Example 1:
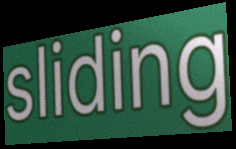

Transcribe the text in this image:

sliding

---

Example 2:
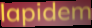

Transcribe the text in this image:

lapidem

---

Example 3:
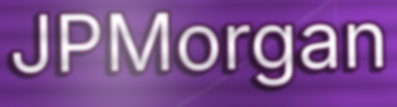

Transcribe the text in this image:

JPMorgan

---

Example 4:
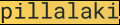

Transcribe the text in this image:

pillalaki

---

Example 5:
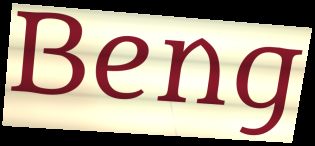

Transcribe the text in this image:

Beng